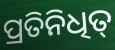
ପ୍ରତିନିଧିତ୍